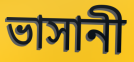
ভাসানী